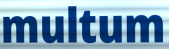
multum